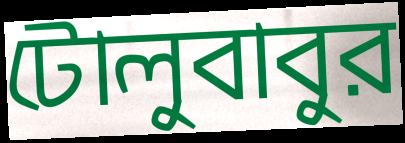
টোলুবাবুর